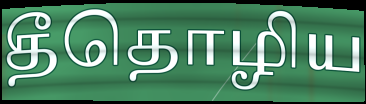
தீதொழிய